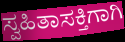
ಸ್ವಹಿತಾಸಕ್ತಿಗಾಗಿ